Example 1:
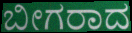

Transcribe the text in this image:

ಬೀಗರಾದ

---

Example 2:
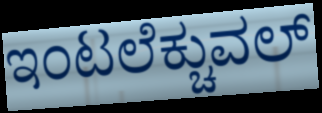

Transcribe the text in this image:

ಇಂಟಲೆಕ್ಚುವಲ್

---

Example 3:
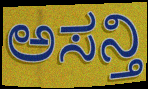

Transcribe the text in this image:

ಅಸನ್ತಿ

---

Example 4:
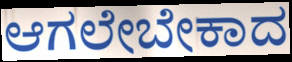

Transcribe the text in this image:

ಆಗಲೇಬೇಕಾದ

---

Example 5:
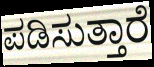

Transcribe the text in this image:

ಪಡಿಸುತ್ತಾರೆ